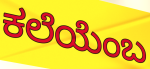
ಕಲೆಯೆಂಬ